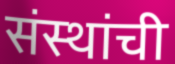
संस्थांची